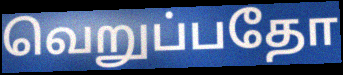
வெறுப்பதோ